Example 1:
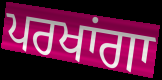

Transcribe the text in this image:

ਪਰਖਾਂਗਾ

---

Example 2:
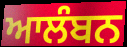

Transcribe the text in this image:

ਆਲੰਬਨ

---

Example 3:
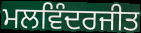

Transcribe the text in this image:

ਮਲਵਿੰਦਰਜੀਤ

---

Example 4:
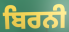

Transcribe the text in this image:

ਬਿਰਨੀ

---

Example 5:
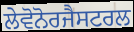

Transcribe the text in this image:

ਲੇਵੋਨੋਰਜੈਸਟਰਲ